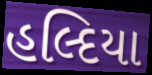
હલ્દિયા